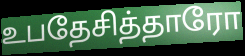
உபதேசித்தாரோ